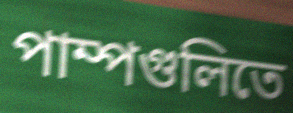
পাম্পগুলিতে